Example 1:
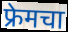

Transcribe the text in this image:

फ्रेमचा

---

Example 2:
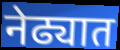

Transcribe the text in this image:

नेढ्यात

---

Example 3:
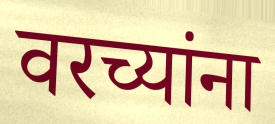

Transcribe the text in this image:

वरच्यांना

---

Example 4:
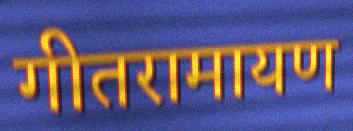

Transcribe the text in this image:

गीतरामायण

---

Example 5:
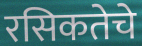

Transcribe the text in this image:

रसिकतेचे